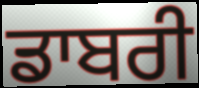
ਡਾਬਰੀ